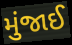
મુંજાઈ